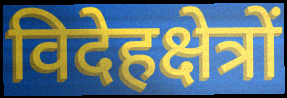
विदेहक्षेत्रों